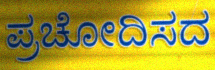
ಪ್ರಚೋದಿಸದ